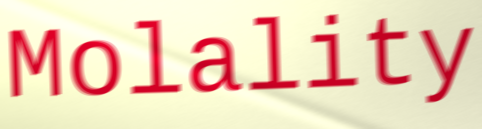
Molality